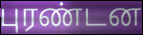
புரண்டன